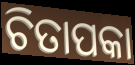
ଚିତାପକା